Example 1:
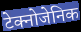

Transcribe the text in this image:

टेक्नोजेनिक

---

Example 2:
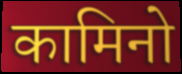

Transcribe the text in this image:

कामिनो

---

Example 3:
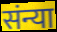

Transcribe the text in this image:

संन्या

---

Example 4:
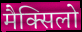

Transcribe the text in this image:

मैक्सिलो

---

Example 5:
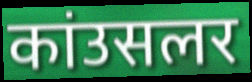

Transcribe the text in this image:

कांउसलर